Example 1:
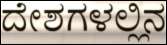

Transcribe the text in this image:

ದೇಶಗಳಲ್ಲಿನ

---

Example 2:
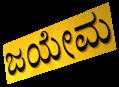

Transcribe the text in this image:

ಜಯೇಮ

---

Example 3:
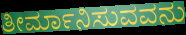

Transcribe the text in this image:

ತೀರ್ಮಾನಿಸುವವನು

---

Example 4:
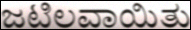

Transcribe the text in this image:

ಜಟಿಲವಾಯಿತು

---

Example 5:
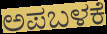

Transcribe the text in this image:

ಅಪಬಳಕೆ